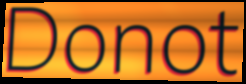
Donot